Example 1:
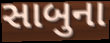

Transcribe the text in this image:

સાબુના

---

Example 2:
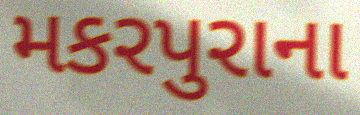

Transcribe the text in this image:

મકરપુરાના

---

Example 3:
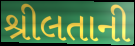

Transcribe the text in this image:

શ્રીલતાની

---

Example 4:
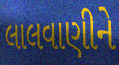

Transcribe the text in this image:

લાલવાણીને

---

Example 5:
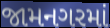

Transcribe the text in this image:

જામનગરમાં